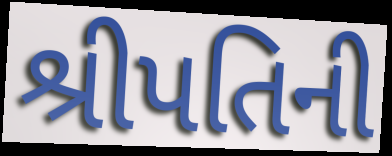
શ્રીપતિની